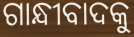
ଗାନ୍ଧୀବାଦକୁ